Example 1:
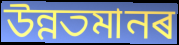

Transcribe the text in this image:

উন্নতমানৰ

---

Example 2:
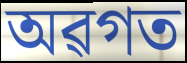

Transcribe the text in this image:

অৱগত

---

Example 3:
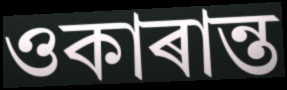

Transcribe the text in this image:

ওকাৰান্ত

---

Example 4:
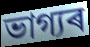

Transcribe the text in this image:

ভাগ্যৰ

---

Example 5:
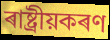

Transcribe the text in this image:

ৰাষ্ট্ৰীয়কৰণ